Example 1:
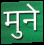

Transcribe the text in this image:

मुने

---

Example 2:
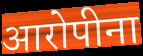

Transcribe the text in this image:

आरोपीना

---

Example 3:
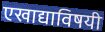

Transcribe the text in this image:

एखाद्याविषयी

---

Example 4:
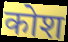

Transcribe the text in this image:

कोश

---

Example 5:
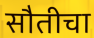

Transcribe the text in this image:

सौतीचा